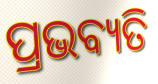
ପ୍ରଭବ୍ୟତି